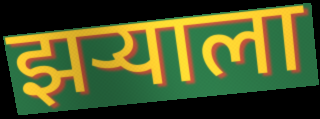
झर्‍याला